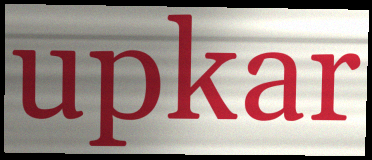
upkar